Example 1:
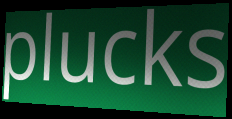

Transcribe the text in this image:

plucks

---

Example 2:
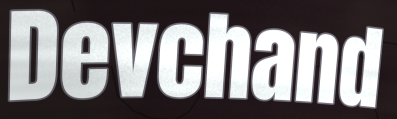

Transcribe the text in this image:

Devchand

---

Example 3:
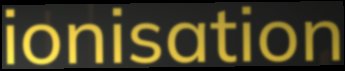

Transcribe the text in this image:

ionisation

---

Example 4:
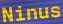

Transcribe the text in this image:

Ninus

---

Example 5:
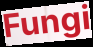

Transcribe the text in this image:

Fungi